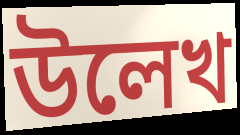
উলেখ